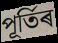
পূৰ্তিৰ